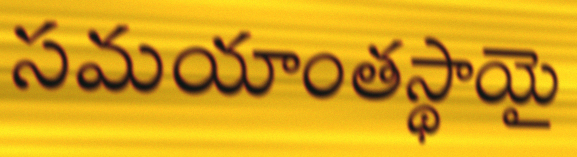
సమయాంతస్థాయై